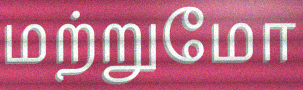
மற்றுமோ